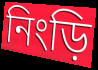
নিংড়ি